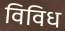
विविध